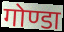
गोण्डा